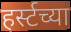
हर्स्टच्या